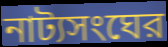
নাট্যসংঘের